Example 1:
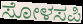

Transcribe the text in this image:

ಸೋಳಸಪಿ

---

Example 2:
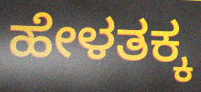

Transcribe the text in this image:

ಹೇಳತಕ್ಕ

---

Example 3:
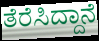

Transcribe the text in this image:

ತೆರೆಸಿದ್ದಾನೆ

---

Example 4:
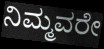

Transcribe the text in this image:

ನಿಮ್ಮವರೇ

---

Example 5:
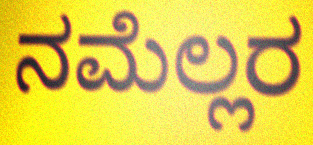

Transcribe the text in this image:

ನಮೆಲ್ಲರ